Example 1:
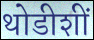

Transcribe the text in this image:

थोडीशीं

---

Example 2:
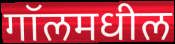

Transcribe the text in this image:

गॉलमधील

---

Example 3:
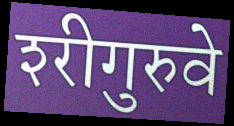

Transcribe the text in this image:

श्रीगुरुवे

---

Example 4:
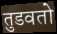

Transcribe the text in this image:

तुडवतो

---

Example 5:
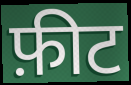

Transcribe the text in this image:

फ़ीट